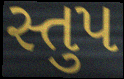
સ્તુપ